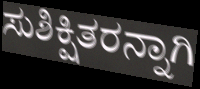
ಸುಶಿಕ್ಷಿತರನ್ನಾಗಿ